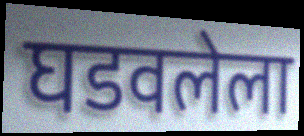
घडवलेला